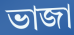
ভাজা